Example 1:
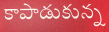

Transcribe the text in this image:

కాపాడుకున్న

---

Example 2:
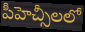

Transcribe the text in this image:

పీహెచ్సీలలో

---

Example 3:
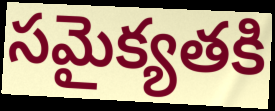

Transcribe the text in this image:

సమైక్యతకి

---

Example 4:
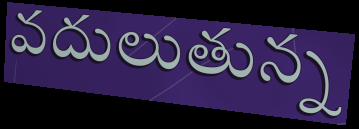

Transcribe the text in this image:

వదులుతున్న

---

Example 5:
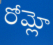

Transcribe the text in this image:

రోమ్లో